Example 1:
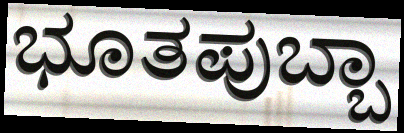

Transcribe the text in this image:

ಭೂತಪುಬ್ಬಾ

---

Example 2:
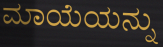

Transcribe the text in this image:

ಮಾಯೆಯನ್ನು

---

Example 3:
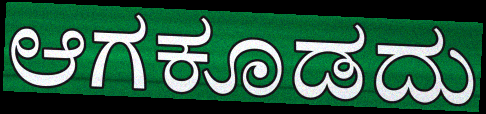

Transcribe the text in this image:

ಆಗಕೂಡದು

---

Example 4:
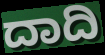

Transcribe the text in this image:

ದಾದಿ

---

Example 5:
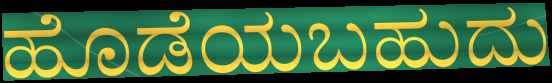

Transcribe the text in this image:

ಹೊಡೆಯಬಹುದು